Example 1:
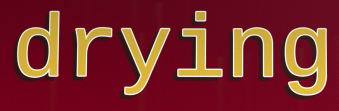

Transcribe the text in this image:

drying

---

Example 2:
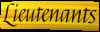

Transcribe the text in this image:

Lieutenants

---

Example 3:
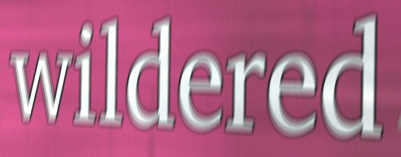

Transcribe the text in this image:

wildered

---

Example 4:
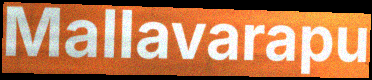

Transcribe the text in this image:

Mallavarapu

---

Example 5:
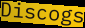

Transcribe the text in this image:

Discogs